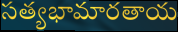
సత్యభామారతాయ